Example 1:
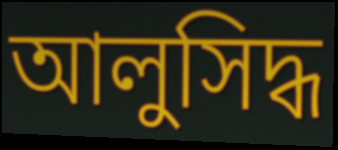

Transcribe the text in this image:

আলুসিদ্ধ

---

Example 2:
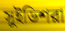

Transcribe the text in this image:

সুইডিশরা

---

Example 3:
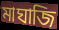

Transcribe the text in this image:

মাঘাজি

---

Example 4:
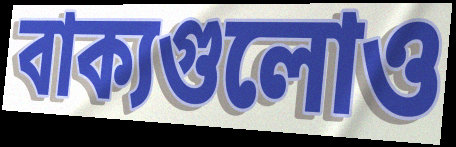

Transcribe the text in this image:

বাক্যগুলোও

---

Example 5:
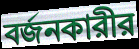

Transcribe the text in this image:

বর্জনকারীর